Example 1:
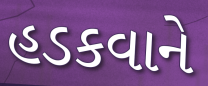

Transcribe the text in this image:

હડકવાને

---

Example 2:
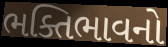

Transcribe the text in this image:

ભક્તિભાવનો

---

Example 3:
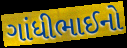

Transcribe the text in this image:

ગાંધીભાઈનો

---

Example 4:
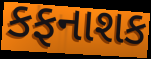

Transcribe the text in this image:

કફનાશક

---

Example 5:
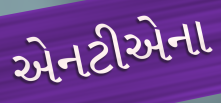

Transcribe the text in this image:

એનટીએના